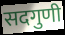
सदगुणी